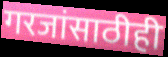
गरजांसाठीही